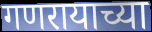
गणरायाच्या